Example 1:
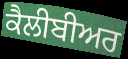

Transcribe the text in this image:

ਕੈਲੀਬੀਅਰ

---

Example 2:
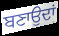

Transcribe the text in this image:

ਬਣਾਉਦਾਂ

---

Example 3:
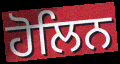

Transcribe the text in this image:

ਹੋਲਿਨ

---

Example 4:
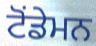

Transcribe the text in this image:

ਟੋਂਡੇਮਨ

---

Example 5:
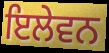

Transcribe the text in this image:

ਇਲੇਵਨ